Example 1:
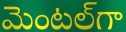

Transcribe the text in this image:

మెంటల్‌గా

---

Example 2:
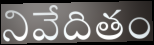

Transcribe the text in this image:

నివేదితం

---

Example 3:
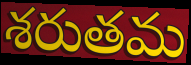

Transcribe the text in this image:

శరుతమ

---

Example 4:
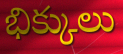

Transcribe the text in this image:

భిక్కులు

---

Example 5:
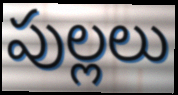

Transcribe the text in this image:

పుల్లలు